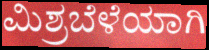
ಮಿಶ್ರಬೆಳೆಯಾಗಿ